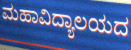
ಮಹಾವಿದ್ಯಾಲಯದ